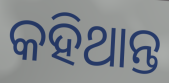
କହିଥାନ୍ତ